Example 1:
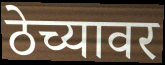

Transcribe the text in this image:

ठेच्यावर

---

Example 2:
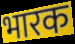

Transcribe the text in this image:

भारक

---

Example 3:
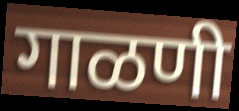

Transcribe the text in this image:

गाळणी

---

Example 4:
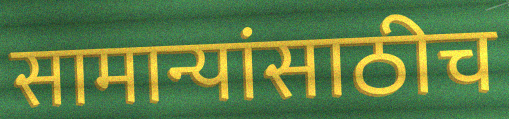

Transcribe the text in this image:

सामान्यांसाठीच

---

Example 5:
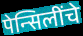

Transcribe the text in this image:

पेन्सिलींचे